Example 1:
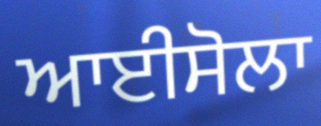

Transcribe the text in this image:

ਆਈਸੋਲਾ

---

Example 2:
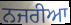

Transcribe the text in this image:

ਨਜਰੀਆ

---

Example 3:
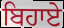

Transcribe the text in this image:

ਬਿਹਾਏ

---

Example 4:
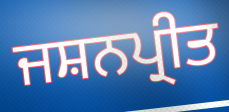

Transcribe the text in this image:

ਜਸ਼ਨਪ੍ਰੀਤ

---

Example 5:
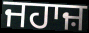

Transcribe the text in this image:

ਜਹਾਜ਼